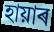
হায়াৰ